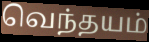
வெந்தயம்